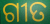
ଗୀତ